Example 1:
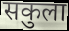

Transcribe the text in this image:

सकुला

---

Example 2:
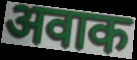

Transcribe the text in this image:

अवाक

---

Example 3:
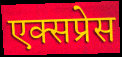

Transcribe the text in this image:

एक्सप्रेस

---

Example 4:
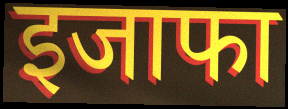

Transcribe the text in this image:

इजाफा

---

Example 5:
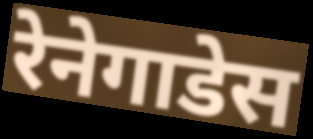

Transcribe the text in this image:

रेनेगाडेस